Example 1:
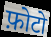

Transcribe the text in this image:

फ़ोटो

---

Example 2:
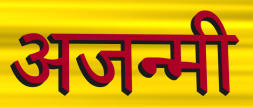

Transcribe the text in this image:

अजन्मी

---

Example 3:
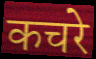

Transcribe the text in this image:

कचरे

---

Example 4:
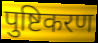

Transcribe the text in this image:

पुष्टिकरण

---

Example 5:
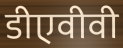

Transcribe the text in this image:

डीएवीवी